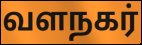
வளநகர்